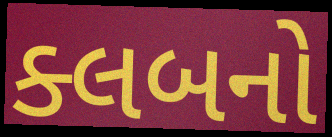
ક્લબનો